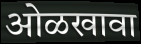
ओळखावा